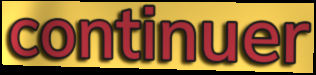
continuer